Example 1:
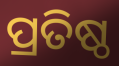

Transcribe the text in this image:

ପ୍ରତିଷ୍ଠ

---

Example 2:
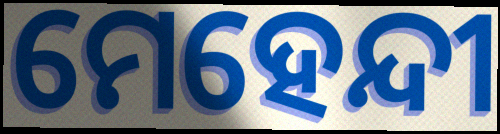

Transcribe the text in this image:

ମେହେନ୍ଦୀ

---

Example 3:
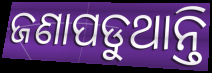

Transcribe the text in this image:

ଜଣାପଡୁଥାନ୍ତି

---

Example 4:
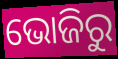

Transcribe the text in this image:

ଭୋଜିରୁ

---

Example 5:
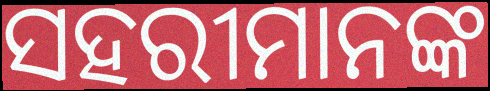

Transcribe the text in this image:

ସହରୀମାନଙ୍କ